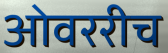
ओवररीच